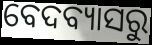
ବେଦବ୍ୟାସରୁ